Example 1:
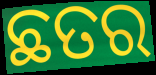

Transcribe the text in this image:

ଛତର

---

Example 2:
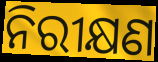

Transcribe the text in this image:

ନିରୀକ୍ଷଣ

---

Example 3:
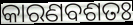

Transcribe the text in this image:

କାରଣବଶତଃ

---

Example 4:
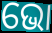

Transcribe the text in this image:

ଭୋ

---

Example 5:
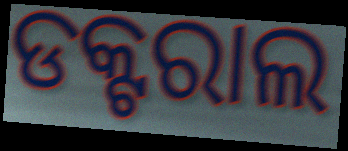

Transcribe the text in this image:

ଡକ୍ଟରାଲ